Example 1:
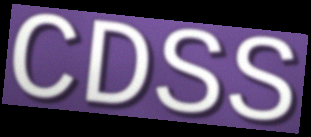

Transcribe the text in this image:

CDSS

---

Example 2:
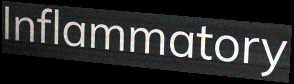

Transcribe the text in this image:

Inflammatory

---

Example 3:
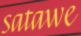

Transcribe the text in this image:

satawe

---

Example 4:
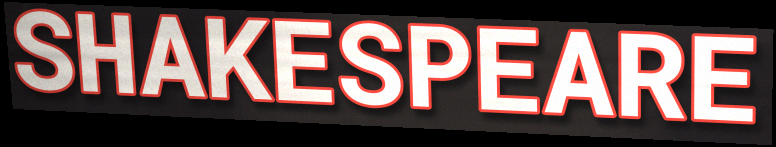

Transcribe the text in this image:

SHAKESPEARE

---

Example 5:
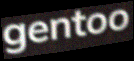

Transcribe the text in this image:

gentoo